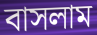
বাসলাম